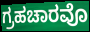
ಗ್ರಹಚಾರವೊ